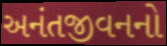
અનંતજીવનનો